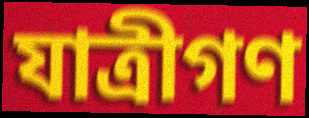
যাত্রীগণ